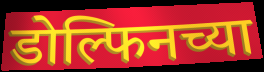
डोल्फिनच्या